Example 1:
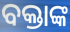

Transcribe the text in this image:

ବକ୍ତାଙ୍କ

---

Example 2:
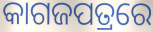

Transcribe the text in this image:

କାଗଜପତ୍ରରେ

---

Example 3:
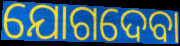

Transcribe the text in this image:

ଯୋଗଦେବା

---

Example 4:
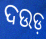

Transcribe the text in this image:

ଦଉଡ଼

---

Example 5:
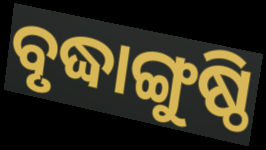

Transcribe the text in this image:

ବୃଦ୍ଧାଙ୍ଗୁଷ୍ଠି